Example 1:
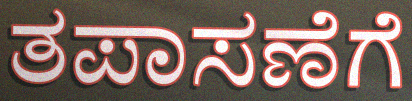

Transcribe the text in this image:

ತಪಾಸಣೆಗೆ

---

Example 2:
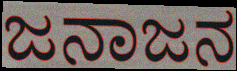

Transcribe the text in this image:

ಜನಾಜನ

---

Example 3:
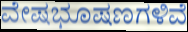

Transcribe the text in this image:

ವೇಷಭೂಷಣಗಳಿವೆ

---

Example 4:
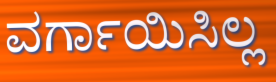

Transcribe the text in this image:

ವರ್ಗಾಯಿಸಿಲ್ಲ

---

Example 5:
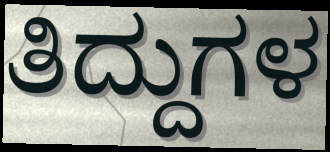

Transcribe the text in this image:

ತಿದ್ದುಗಳ